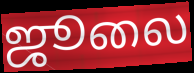
ஜூலை